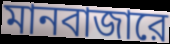
মানবাজারে